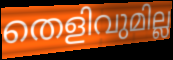
തെളിവുമില്ല